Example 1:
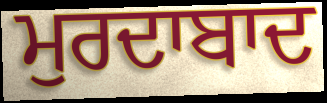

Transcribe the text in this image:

ਮੁਰਦਾਬਾਦ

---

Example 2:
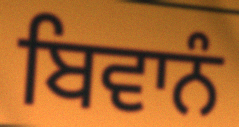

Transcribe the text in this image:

ਬਿਵਾਨੰ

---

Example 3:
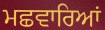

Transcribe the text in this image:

ਮਛਵਾਰਿਆਂ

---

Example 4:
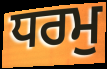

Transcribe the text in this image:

ਧਰਮੁ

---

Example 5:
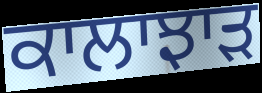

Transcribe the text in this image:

ਕਾਲਾਝਾਡ਼